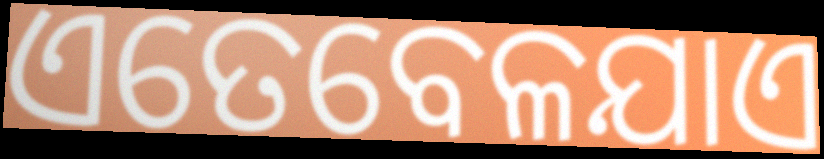
ଏତେବେଳଯାଏ